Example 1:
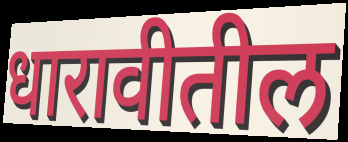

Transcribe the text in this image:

धारावीतील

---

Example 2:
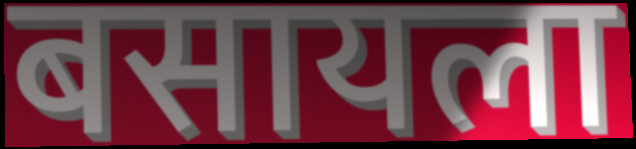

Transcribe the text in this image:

बसायला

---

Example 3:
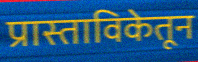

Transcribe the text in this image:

प्रास्ताविकेतून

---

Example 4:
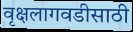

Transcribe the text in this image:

वृक्षलागवडीसाठी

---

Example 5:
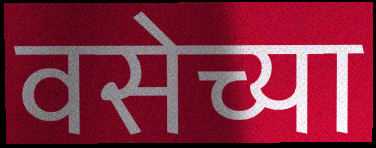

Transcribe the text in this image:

वसेच्या